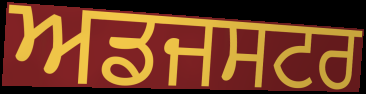
ਅਡਜਸਟਰ